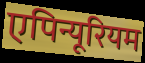
एपिन्यूरियम